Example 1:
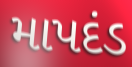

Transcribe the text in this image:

માપદંડ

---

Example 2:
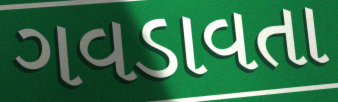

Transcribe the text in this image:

ગવડાવતા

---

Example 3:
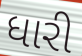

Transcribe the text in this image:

ધારી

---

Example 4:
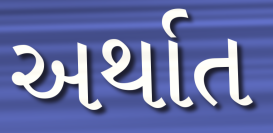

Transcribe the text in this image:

અર્થાત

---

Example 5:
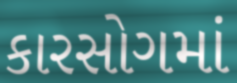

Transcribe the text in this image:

કારસોગમાં